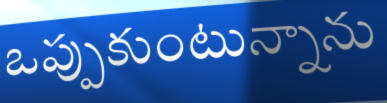
ఒప్పుకుంటున్నాను